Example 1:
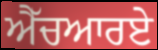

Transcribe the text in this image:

ਐੱਚਆਰਏ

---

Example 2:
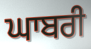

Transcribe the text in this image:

ਘਾਬਰੀ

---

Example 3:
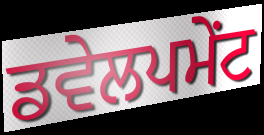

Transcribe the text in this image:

ਡਵੇਲਪਮੇਂਟ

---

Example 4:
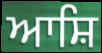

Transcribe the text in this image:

ਆਸ਼ਿ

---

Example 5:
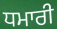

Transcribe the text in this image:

ਧਮਾਰੀ